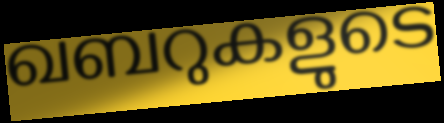
ഖബറുകളുടെ